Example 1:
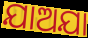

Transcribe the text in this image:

ଯାଅଯା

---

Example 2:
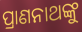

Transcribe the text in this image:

ପ୍ରାଣନାଥଙ୍କୁ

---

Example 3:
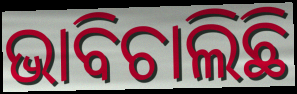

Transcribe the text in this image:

ଭାବିଚାଲିଛି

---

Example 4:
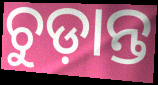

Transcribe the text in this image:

ଚୁଡ଼ାନ୍ତ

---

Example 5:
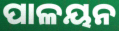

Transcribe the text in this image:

ପାଳୟନ